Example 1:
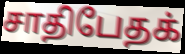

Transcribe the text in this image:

சாதிபேதக்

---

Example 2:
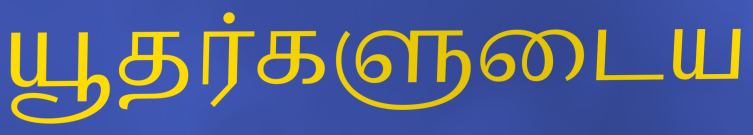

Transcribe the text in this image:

யூதர்களுடைய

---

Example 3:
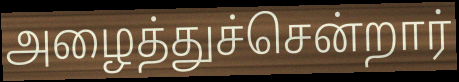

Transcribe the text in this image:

அழைத்துச்சென்றார்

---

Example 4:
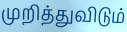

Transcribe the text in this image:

முறித்துவிடும்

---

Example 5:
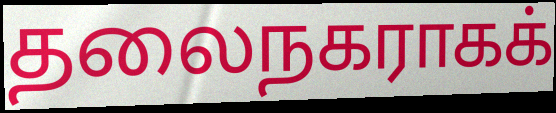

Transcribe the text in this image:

தலைநகராகக்